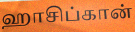
ஹாசிப்கான்